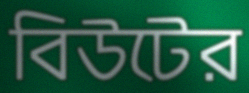
বিউটের